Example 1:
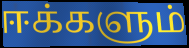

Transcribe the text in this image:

ஈக்களும்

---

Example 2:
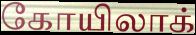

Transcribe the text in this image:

கோயிலாக்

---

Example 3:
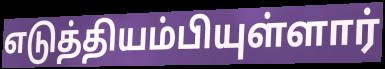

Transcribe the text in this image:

எடுத்தியம்பியுள்ளார்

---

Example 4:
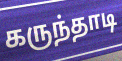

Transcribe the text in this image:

கருந்தாடி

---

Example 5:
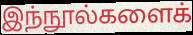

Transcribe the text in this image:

இந்நூல்களைக்